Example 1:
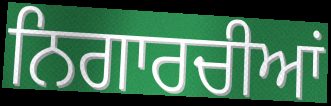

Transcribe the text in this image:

ਨਿਗਾਰਚੀਆਂ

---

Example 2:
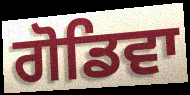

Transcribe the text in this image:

ਗੋਡਿਵਾ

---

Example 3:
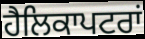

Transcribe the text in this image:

ਹੈਲਿਕਾਪਟਰਾਂ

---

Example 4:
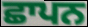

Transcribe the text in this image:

ਛਾਪਨ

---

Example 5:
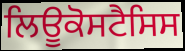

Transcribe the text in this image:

ਲਿਊਕੋਸਟੈਸਿਸ